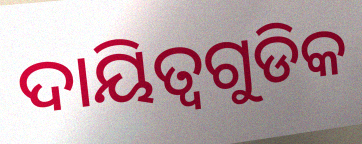
ଦାୟିତ୍ୱଗୁଡିକ